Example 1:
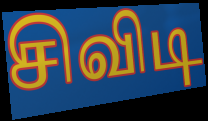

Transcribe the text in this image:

சிவிடி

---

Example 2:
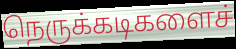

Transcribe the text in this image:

நெருக்கடிகளைச்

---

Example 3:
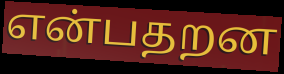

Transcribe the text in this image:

என்பதறன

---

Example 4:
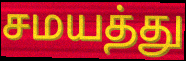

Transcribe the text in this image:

சமயத்து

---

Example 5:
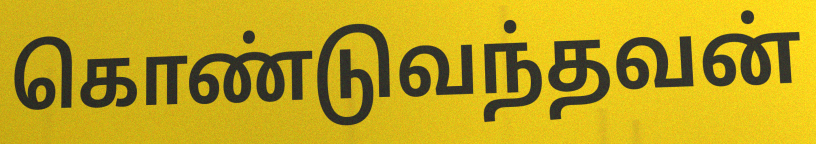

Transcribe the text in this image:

கொண்டுவந்தவன்